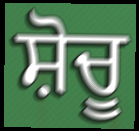
ਸ਼ੋਚੂ